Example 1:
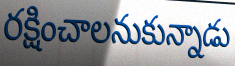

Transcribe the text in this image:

రక్షించాలనుకున్నాడు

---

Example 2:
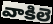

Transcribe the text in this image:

వాకిలె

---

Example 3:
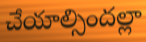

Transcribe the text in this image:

చేయాల్సిందల్లా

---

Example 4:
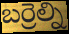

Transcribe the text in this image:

బర్రెల్ని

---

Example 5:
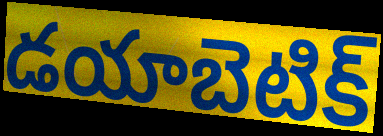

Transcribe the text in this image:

డయాబెటిక్